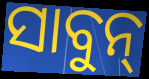
ସାବୁନ୍